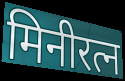
मिनीरत्न